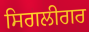
ਸਿਗਲੀਗਰ